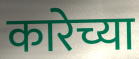
कारेच्या